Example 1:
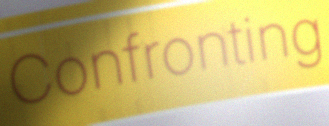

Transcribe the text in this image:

Confronting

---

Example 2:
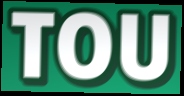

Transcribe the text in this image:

TOU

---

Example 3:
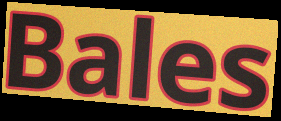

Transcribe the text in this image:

Bales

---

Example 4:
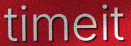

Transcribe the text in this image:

timeit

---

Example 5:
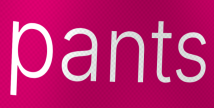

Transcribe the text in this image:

pants